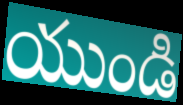
యుండి